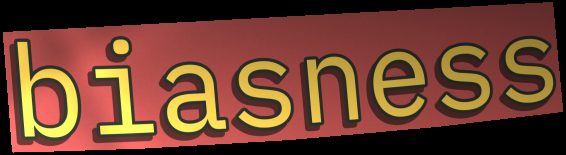
biasness